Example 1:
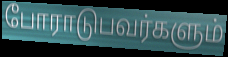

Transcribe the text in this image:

போராடுபவர்களும்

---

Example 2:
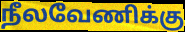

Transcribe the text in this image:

நீலவேணிக்கு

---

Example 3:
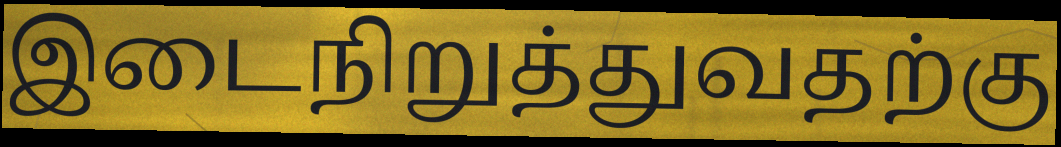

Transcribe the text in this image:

இடைநிறுத்துவதற்கு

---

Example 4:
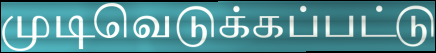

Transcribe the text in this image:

முடிவெடுக்கப்பட்டு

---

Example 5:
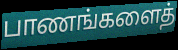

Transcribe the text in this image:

பாணங்களைத்